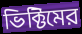
ভিক্টিমের